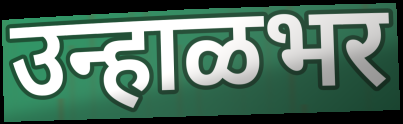
उन्हाळभर